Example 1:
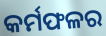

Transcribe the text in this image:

କର୍ମଫଳର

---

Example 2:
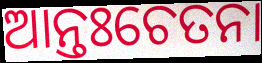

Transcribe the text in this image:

ଆନ୍ତଃଚେତନା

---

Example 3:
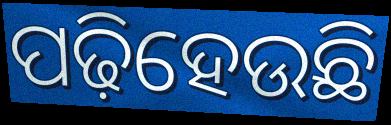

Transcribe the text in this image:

ପଢ଼ିହେଉଛି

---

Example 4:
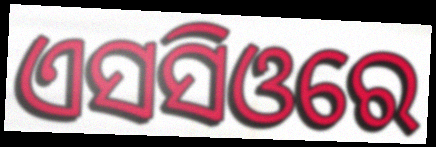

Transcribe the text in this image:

ଏସସିଓରେ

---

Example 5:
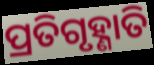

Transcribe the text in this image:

ପ୍ରତିଗୃହ୍ଣାତି